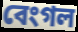
বেংগল